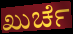
ಖುರ್ಚೆ